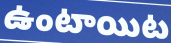
ఉంటాయిట